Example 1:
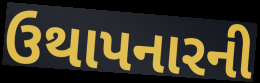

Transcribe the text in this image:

ઉથાપનારની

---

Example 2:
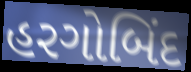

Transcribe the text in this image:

હરગોબિંદ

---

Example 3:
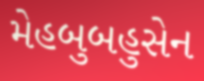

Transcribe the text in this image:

મેહબુબહુસેન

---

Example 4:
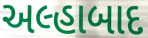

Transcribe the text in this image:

અલ્હાબાદ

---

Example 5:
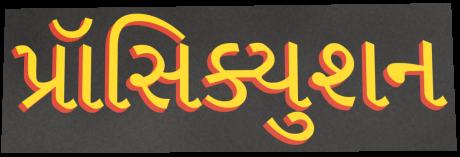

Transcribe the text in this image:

પ્રૉસિક્યુશન